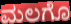
ಮಲಗೊ